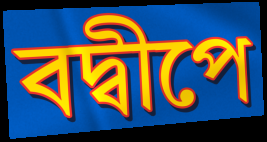
বদ্বীপে